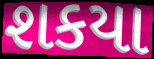
શકયા